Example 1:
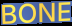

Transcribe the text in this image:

BONE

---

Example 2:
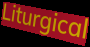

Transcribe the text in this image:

Liturgical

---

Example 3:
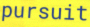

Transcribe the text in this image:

pursuit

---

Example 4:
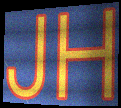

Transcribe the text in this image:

JH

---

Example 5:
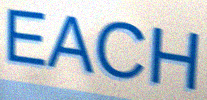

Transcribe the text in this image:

EACH